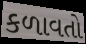
કળાવતો